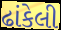
ઢાંકેલી